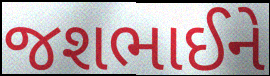
જશભાઈને